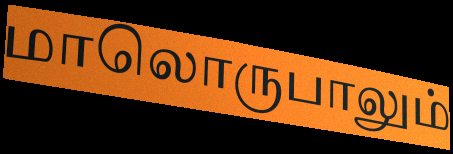
மாலொருபாலும்